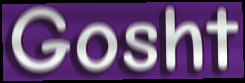
Gosht